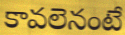
కావలెనంటే